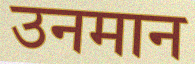
उनमान